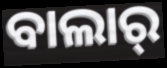
ବାଲାର୍